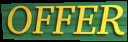
OFFER